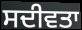
ਸਦੀਵਤਾ